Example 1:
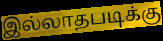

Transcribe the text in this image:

இல்லாதபடிக்கு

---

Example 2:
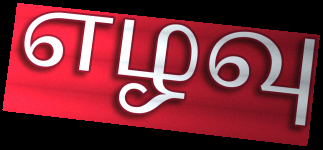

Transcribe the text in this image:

எழவு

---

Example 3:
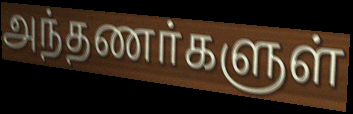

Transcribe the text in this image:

அந்தணர்களுள்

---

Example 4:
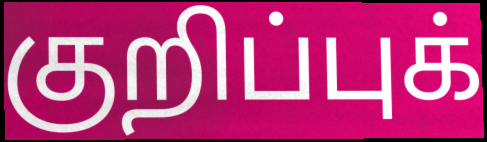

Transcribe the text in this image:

குறிப்புக்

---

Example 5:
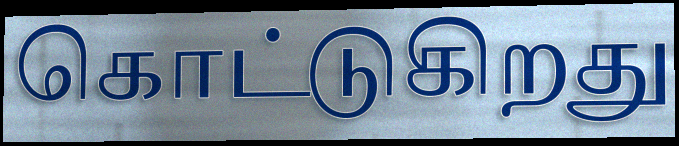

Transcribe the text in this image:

கொட்டுகிறது